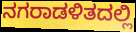
ನಗರಾಡಳಿತದಲ್ಲಿ